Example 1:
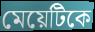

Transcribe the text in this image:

মেয়েটিকে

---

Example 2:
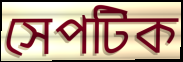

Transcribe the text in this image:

সেপটিক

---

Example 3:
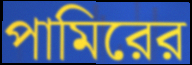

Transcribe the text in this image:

পামিরের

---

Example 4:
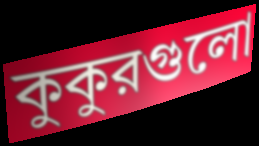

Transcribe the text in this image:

কুকুরগুলো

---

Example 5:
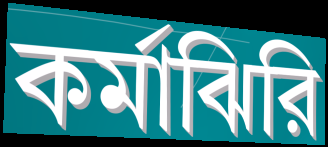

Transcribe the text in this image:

কর্মাঝিরি